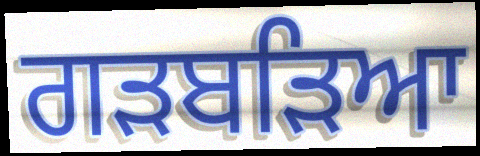
ਗੜਬੜਿਆ